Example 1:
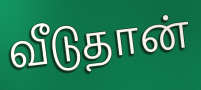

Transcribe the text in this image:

வீடுதான்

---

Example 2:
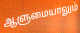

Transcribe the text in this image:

ஆளுமையாலும்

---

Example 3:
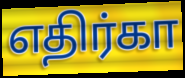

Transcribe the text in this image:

எதிர்கா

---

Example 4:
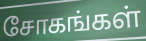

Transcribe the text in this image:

சோகங்கள்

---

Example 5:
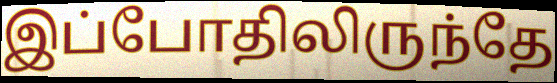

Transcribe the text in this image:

இப்போதிலிருந்தே